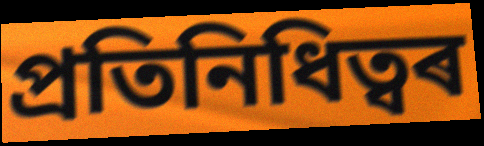
প্ৰতিনিধিত্বৰ